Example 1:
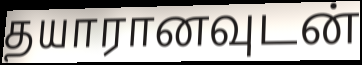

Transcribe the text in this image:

தயாரானவுடன்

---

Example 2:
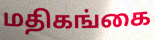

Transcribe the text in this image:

மதிகங்கை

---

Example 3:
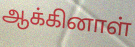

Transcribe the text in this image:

ஆக்கினாள்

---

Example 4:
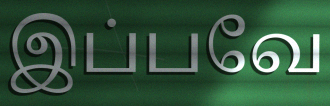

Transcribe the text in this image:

இப்பவே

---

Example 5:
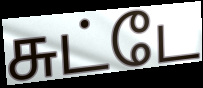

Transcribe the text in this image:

சுட்டே